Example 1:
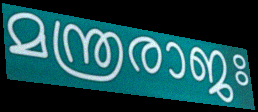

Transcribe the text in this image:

മന്ത്രരാജഃ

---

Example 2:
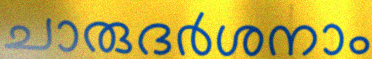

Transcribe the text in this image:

ചാരുദർശനാം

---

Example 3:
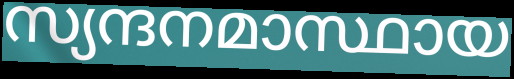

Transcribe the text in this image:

സ്യന്ദനമാസ്ഥായ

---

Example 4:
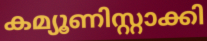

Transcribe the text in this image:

കമ്യൂണിസ്റ്റാക്കി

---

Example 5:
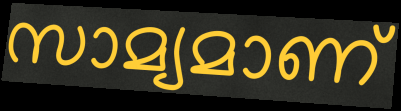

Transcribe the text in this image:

സാമ്യമാണ്